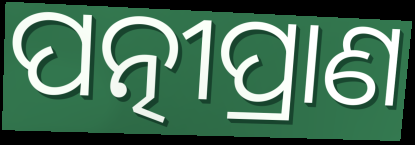
ପତ୍ନୀପ୍ରାଣ